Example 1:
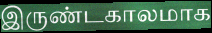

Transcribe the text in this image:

இருண்டகாலமாக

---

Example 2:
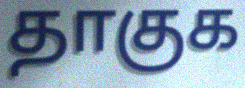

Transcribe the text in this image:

தாகுக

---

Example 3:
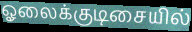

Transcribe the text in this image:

ஓலைக்குடிசையில்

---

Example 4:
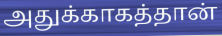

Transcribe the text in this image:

அதுக்காகத்தான்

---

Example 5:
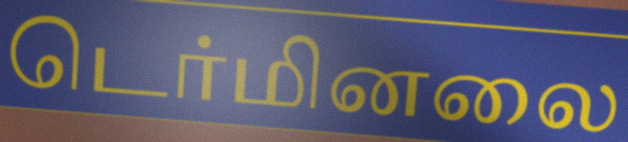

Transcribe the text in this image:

டெர்மினலை